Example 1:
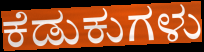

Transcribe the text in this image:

ಕೆಡುಕುಗಳು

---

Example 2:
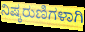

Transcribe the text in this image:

ನಿಷ್ಕರುಣಿಗಳಾಗಿ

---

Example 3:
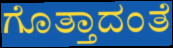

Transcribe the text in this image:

ಗೊತ್ತಾದಂತೆ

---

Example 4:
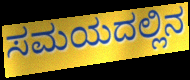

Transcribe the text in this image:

ಸಮಯದಲ್ಲಿನ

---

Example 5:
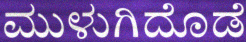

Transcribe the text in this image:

ಮುಳುಗಿದೊಡೆ